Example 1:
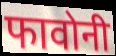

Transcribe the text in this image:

फावोनी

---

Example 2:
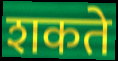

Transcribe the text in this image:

शकते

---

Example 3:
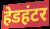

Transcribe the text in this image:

हेडहंटर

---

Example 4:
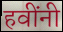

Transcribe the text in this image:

हवींनी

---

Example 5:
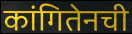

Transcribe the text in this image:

कांगितेनची